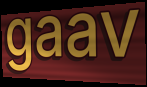
gaav